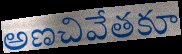
అణచివేతకూ